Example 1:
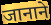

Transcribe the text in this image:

जानाने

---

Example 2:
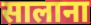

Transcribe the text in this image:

सालाना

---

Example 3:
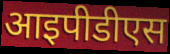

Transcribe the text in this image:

आइपीडीएस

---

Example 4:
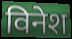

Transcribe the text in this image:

विनेश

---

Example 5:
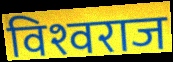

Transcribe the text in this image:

विश्वराज